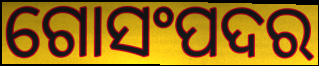
ଗୋସଂପଦର